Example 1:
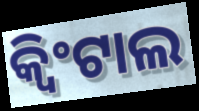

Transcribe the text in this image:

କ୍ୱିଂଟାଲ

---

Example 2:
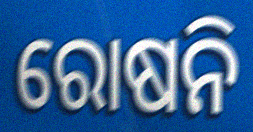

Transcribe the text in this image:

ରୋଷନି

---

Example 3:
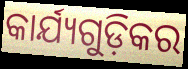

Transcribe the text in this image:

କାର୍ଯ୍ୟଗୁଡ଼ିକର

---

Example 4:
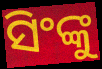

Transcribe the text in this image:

ସିଂଙ୍କୁ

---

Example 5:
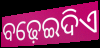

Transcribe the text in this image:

ବଢ଼େଇଦିଏ